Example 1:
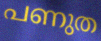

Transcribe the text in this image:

പണുത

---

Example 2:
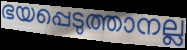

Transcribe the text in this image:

ഭയപ്പെടുത്താനല്ല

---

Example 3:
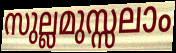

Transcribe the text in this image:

സുല്ലമുസ്സലാം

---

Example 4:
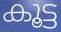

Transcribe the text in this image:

കൂട്ട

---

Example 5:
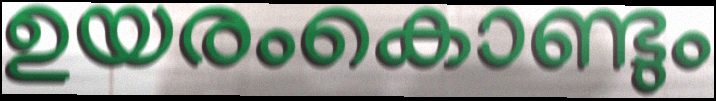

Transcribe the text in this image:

ഉയരംകൊണ്ടും